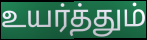
உயர்த்தும்